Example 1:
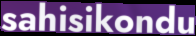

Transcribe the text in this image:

sahisikondu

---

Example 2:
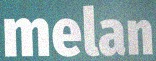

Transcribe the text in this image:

melan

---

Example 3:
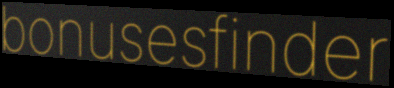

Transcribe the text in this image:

bonusesfinder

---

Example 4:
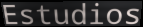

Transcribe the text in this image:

Estudios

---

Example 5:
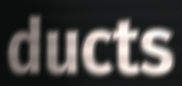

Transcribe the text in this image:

ducts